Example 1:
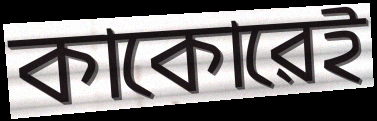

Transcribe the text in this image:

কাকোৱেই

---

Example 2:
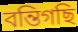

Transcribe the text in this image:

বন্তিগছি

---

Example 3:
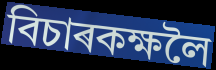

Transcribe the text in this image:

বিচাৰকক্ষলৈ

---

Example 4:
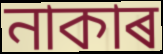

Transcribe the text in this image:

নাকাৰ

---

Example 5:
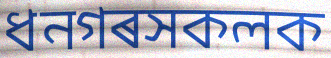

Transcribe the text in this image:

ধনগৰসকলক